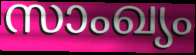
സാംഖ്യം